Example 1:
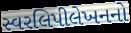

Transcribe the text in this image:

સ્વરલિપીલેખનનો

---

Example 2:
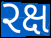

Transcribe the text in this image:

રક્ષ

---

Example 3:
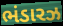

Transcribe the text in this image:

ભંડારઝ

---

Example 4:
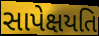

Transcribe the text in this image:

સાપેક્ષયતિ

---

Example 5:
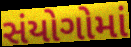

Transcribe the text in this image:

સંયોગોમાં